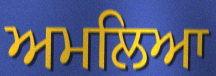
ਅਮਲਿਆ